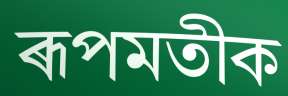
ৰূপমতীক